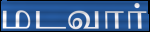
மடவார்